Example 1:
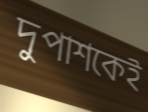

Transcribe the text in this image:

দুপাশকেই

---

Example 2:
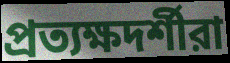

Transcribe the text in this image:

প্রত্যক্ষদর্শীরা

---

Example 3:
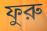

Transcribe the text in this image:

ফুরু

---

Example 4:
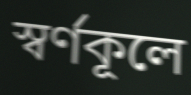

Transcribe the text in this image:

স্বর্ণকূলে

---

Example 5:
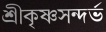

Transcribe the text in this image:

শ্রীকৃষ্ণসন্দর্ভ